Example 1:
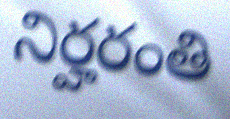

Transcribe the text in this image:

నిర్హరంతి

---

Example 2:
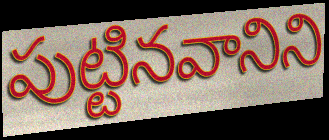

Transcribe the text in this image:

పుట్టినవానిని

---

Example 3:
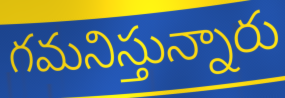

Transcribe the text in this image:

గమనిస్తున్నారు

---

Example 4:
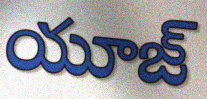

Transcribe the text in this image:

యూజ్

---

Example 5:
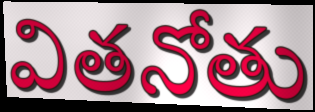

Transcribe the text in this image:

వితనోతు